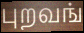
புறவங்